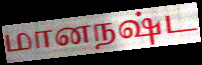
மானநஷ்ட